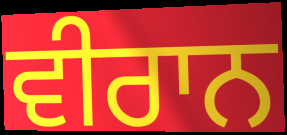
ਵੀਰਾਨ